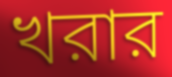
খরার